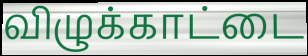
விழுக்காட்டை